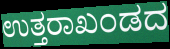
ಉತ್ತರಾಖಂಡದ